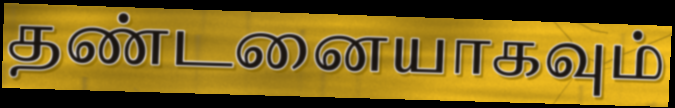
தண்டனையாகவும்